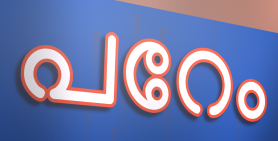
പറേം